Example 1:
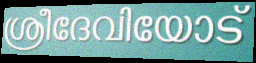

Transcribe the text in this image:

ശ്രീദേവിയോട്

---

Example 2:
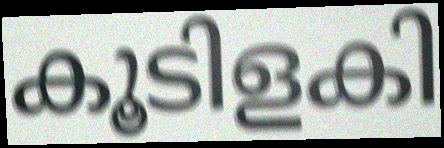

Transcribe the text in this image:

കൂടിളകി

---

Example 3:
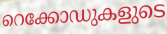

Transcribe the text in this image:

റെക്കോഡുകളുടെ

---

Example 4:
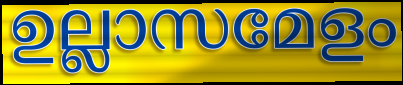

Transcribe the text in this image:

ഉല്ലാസമേളം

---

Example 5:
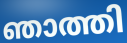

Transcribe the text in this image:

ഞാത്തി